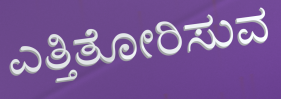
ಎತ್ತಿತೋರಿಸುವ